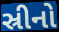
સ્રીનો